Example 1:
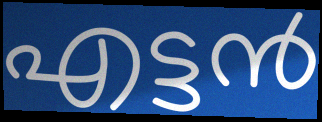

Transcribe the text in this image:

എട്ടൻ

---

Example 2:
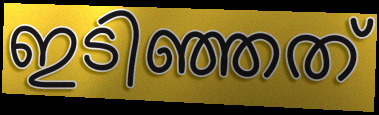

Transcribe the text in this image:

ഇടിഞ്ഞത്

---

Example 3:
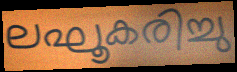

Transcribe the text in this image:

ലഘൂകരിച്ചു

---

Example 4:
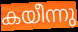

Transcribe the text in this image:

കയീന്നു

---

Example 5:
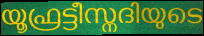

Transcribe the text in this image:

യൂഫ്രട്ടീസ്നദിയുടെ